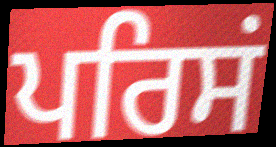
ਪਰਿਸਂ